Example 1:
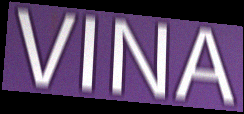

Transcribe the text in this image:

VINA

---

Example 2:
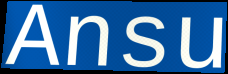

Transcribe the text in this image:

Ansu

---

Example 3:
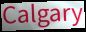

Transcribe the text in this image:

Calgary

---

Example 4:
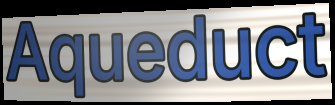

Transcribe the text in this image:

Aqueduct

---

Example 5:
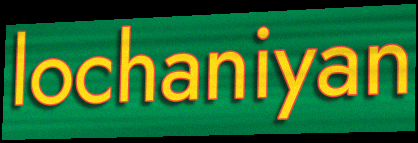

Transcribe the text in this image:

lochaniyan